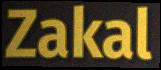
Zakal